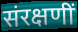
संरक्षणीं